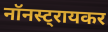
नॉनस्ट्रायकर